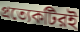
প্রত্যেকটিরই